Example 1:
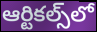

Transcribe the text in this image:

ఆర్టికల్స్‌లో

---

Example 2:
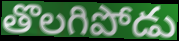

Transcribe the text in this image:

తొలగిపోడు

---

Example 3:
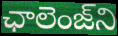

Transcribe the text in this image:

ఛాలెంజ్‌ని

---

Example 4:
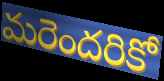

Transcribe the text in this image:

మరెందరికో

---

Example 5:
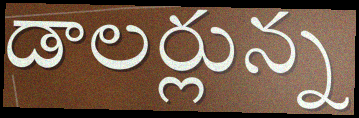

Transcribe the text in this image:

డాలర్లున్న